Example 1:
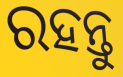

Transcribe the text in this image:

ରହନ୍ତୁ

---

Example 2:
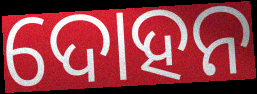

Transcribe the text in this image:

ଦୋହନ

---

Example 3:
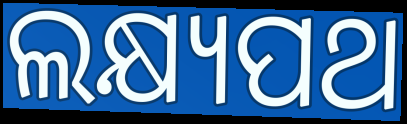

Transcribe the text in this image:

ଲକ୍ଷ୍ୟପଥ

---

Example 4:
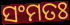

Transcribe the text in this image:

ସଂମତଃ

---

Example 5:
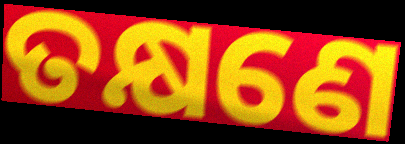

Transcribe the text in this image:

ତକ୍ଷଣେ